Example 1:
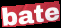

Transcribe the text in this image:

bate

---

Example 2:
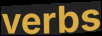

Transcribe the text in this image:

verbs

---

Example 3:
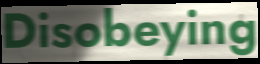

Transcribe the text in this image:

Disobeying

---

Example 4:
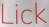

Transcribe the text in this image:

Lick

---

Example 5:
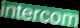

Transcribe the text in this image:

intercom